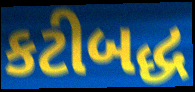
કટીબદ્ધ